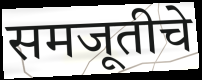
समजूतीचे